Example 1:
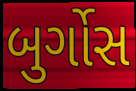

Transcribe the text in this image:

બુર્ગોસ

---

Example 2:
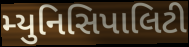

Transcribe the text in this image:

મ્યુનિસિપાલિટી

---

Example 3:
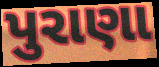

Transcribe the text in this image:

પુરાણા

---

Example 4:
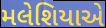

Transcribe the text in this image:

મલેશિયાએ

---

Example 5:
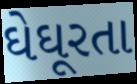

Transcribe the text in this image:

ઘેઘૂરતા